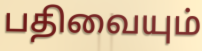
பதிவையும்